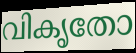
വികൃതോ